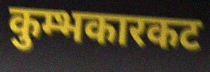
कुम्भकारकट